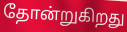
தோன்றுகிறது